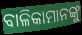
ବାଳିକାମାନଙ୍କୁ